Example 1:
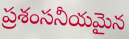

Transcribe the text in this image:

ప్రశంసనీయమైన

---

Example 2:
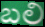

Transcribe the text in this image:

బలి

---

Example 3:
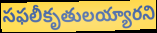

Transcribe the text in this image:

సఫలీకృతులయ్యారని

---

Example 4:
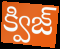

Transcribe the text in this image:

క్విజ్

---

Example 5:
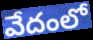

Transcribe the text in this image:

వేదంలో